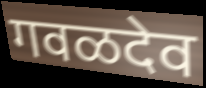
गवळदेव